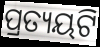
ପ୍ରତ୍ୟୟଟି